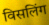
विसलिंग